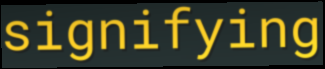
signifying